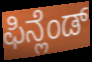
ಫಿನ್ಲೆಂಡ್